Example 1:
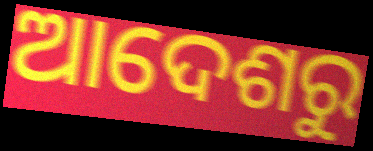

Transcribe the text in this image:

ଆଦେଶରୁ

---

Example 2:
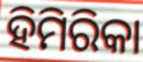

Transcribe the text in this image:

ହିମିରିକା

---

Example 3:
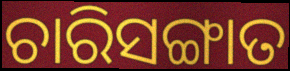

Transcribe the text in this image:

ଚାରିସଙ୍ଗାତ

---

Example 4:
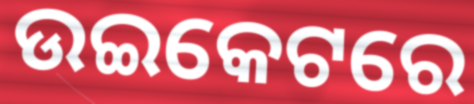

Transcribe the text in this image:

ଉଇକେଟରେ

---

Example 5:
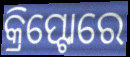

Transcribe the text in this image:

କ୍ରିପ୍ଟୋରେ